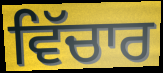
ਵਿੱਚਾਰ